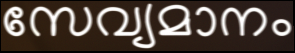
സേവ്യമാനം